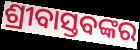
ଶ୍ରୀବାସ୍ତବଙ୍କର